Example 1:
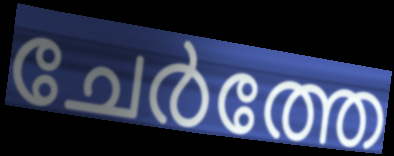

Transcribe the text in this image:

ചേർത്തേ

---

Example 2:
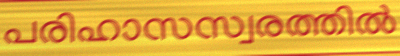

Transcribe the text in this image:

പരിഹാസസ്വരത്തിൽ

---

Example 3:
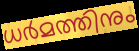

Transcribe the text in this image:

ധർമത്തിനും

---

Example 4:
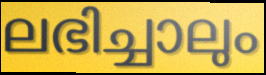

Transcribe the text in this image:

ലഭിച്ചാലും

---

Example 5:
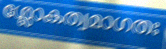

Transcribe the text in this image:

ശ്ലോകത്വമാഗതഃ